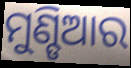
ମୁଣ୍ଡିଆର